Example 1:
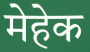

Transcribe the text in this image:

मेहेक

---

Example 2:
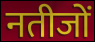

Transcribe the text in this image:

नतीजों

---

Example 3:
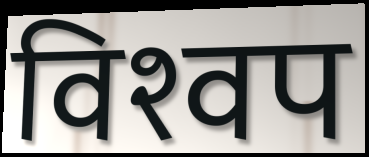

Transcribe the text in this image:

विश्वप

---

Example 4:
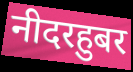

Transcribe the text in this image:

नीदरहुबर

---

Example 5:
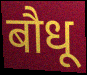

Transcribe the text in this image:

बौधू